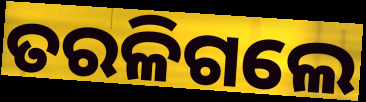
ତରଳିଗଲେ